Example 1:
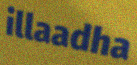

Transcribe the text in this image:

illaadha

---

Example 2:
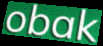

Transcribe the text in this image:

obak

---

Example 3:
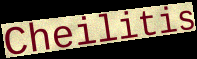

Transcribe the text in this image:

Cheilitis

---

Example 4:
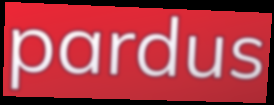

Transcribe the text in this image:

pardus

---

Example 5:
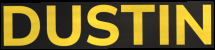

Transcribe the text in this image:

DUSTIN